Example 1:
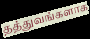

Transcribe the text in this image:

தத்துவங்களாக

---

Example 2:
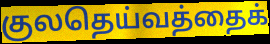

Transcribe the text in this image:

குலதெய்வத்தைக்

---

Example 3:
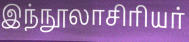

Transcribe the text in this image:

இந்நூலாசிரியர்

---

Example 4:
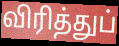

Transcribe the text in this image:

விரித்துப்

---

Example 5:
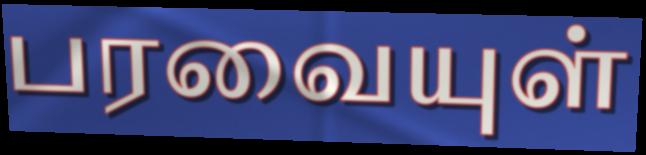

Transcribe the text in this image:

பரவையுள்